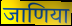
जाणिया